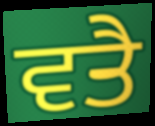
ਵਤੈ